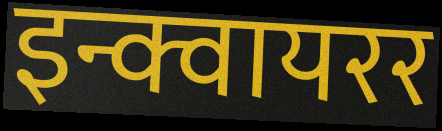
इन्क्वायरर